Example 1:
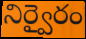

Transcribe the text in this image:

నిర్వైరం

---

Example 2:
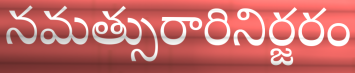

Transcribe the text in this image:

నమత్సురారినిర్జరం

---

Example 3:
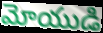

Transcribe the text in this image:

మోయుడి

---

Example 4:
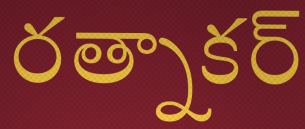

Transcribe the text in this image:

రత్నాకర్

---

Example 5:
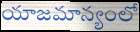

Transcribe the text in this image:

యాజమాన్యంలో